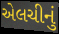
એલચીનું